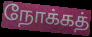
நோக்கத்